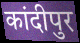
कांदीपुर